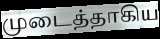
முடைத்தாகிய